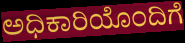
ಅಧಿಕಾರಿಯೊಂದಿಗೆ